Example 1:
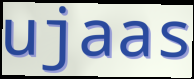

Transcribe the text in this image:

ujaas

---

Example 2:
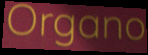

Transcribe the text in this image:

Organo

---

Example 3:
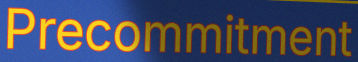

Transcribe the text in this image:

Precommitment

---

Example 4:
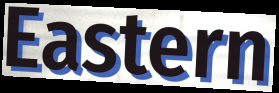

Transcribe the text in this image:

Eastern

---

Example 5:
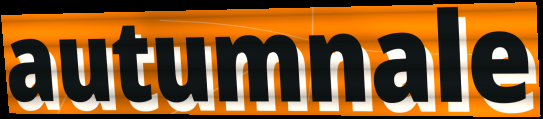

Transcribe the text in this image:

autumnale